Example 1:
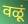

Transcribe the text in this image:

वळूं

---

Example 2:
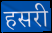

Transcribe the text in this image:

हसरी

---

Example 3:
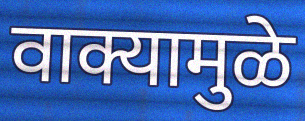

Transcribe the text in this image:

वाक्यामुळे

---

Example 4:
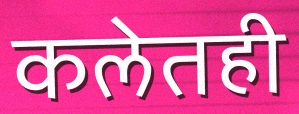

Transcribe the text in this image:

कलेतही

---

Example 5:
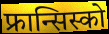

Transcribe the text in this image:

फ्रान्सिस्को